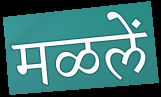
मळलें